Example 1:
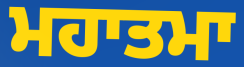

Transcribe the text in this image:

ਮਹਾਤਮਾ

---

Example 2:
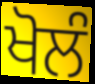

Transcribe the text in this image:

ਖੋਲੰ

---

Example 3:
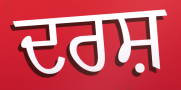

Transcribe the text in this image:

ਦਰਸ਼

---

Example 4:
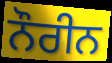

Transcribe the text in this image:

ਨੌਰੀਨ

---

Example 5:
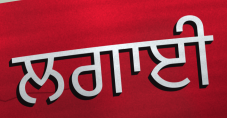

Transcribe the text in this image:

ਲਗਾਈ